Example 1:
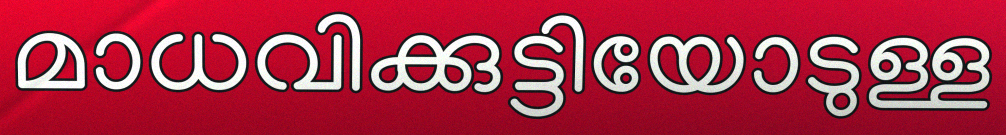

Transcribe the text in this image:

മാധവിക്കുട്ടിയോടുള്ള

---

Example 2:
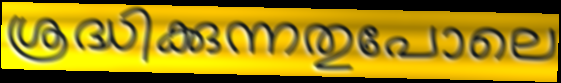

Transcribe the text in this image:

ശ്രദ്ധിക്കുന്നതുപോലെ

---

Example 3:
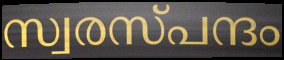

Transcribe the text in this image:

സ്വരസ്പന്ദം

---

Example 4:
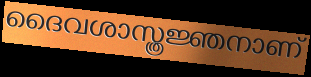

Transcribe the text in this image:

ദൈവശാസ്ത്രജ്ഞനാണ്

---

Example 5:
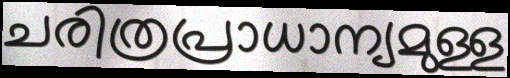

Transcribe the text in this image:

ചരിത്രപ്രാധാന്യമുള്ള